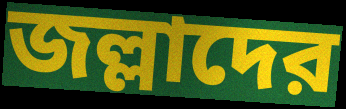
জল্লাদের